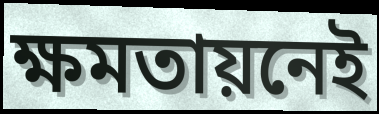
ক্ষমতায়নেই